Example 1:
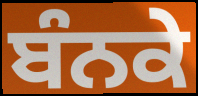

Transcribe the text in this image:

ਬੰਨਕੇ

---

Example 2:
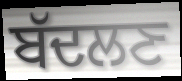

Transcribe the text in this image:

ਬੱਦਲਣ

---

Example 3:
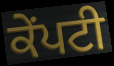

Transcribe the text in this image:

ਕੇਂਪਟੀ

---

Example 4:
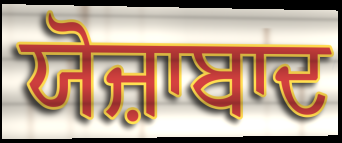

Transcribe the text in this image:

ਯੋਜ਼ਾਬਾਦ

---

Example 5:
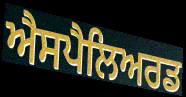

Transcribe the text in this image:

ਐਸਪੈਲਿਅਰਡ